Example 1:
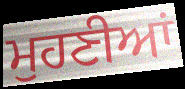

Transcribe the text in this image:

ਮੁਹਣੀਆਂ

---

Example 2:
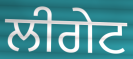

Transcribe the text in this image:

ਲੀਗੇਟ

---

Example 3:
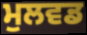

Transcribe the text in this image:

ਮੁਲਵਡ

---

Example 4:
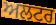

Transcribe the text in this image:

ਅਲਟਰ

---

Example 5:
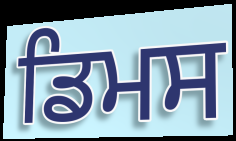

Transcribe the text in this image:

ਡਿਮਸ